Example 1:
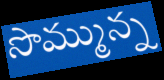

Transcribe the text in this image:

సొమ్మున్న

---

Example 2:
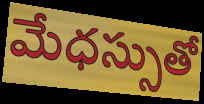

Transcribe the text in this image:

మేధస్సుతో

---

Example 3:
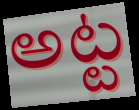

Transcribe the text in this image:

అట్ట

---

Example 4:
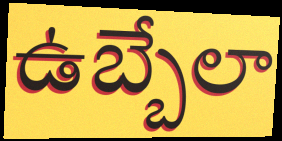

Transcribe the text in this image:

ఉబ్బేలా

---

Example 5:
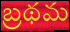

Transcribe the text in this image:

బ్రథమ